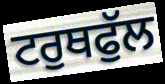
ਟਰੁਥਫੁੱਲ